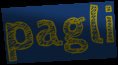
pagli